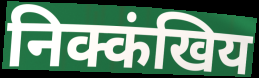
निक्कंखिय